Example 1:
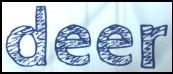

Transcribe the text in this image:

deer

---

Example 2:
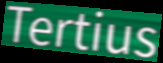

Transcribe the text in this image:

Tertius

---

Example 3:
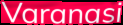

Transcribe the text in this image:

Varanasi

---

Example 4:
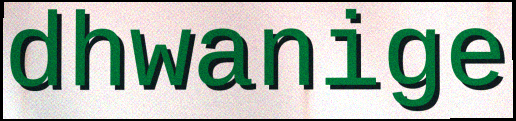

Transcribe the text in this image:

dhwanige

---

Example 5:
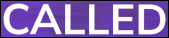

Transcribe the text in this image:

CALLED